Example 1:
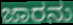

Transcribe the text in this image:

ಜಾರನು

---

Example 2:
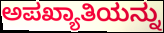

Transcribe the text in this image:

ಅಪಖ್ಯಾತಿಯನ್ನು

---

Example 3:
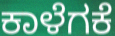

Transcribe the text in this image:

ಕಾಳೆಗಕೆ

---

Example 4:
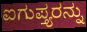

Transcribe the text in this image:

ಐಗುಪ್ತ್ಯರನ್ನು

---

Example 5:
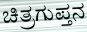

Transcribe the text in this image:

ಚಿತ್ರಗುಪ್ತನ